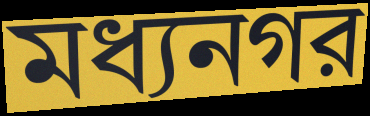
মধ্যনগর